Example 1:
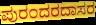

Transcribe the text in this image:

ಪುರಂದರದಾಸರ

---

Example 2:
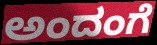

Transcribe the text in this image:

ಅಂದಂಗೆ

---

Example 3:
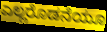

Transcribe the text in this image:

ಎಲ್ಲರೊಡನೆಯೂ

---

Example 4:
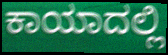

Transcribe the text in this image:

ಕಾಯಾದಲ್ಲಿ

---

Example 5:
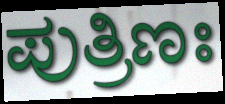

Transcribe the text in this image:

ಪುತ್ರಿಣಃ